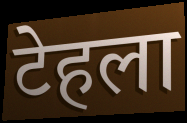
टेहला